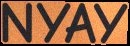
NYAY